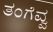
ತಂಗೆವ್ವ